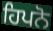
ਹਿਪਨੋ